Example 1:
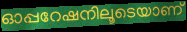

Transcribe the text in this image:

ഓപ്പറേഷനിലൂടെയാണ്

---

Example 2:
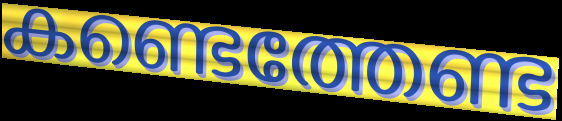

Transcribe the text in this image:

കണ്ടെത്തേണ്ട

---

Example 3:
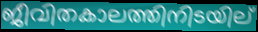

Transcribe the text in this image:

ജീവിതകാലത്തിനിടയില്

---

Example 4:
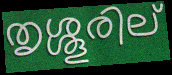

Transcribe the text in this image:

തൃശ്ശൂരില്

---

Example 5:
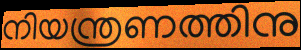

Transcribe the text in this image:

നിയന്ത്രണത്തിനു